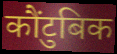
कौंटुबिक